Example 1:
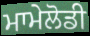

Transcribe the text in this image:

ਮਾਮੇਲੋਡੀ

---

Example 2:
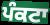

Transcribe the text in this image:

ਪੰਕਟਾ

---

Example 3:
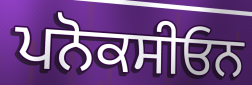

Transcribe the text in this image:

ਪਨੋਕਸੀਓਨ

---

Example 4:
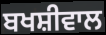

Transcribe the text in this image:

ਬਖਸ਼ੀਵਾਲ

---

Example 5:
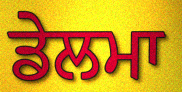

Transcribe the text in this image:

ਡੇਲਮਾ